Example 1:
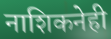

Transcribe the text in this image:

नाशिकनेही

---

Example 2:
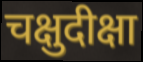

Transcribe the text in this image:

चक्षुदीक्षा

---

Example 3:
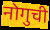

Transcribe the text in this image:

नोगुची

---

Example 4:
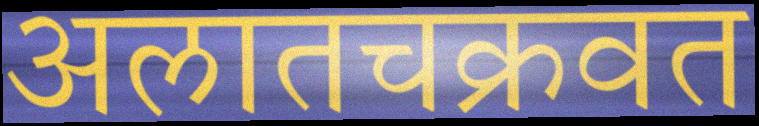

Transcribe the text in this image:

अलातचक्रवत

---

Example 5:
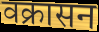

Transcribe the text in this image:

वक्रासन